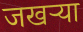
जखऱ्या